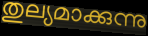
തുല്യമാക്കുന്നു